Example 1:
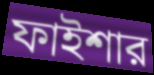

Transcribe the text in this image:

ফাইশার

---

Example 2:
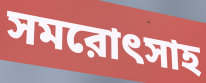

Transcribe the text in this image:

সমরোৎসাহ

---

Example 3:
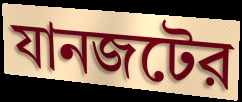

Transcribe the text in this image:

যানজটের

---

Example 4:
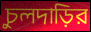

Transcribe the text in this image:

চুলদাড়ির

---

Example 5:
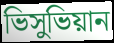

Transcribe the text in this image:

ভিসুভিয়ান